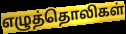
எழுத்தொலிகள்